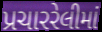
પ્રચારરેલીમાં